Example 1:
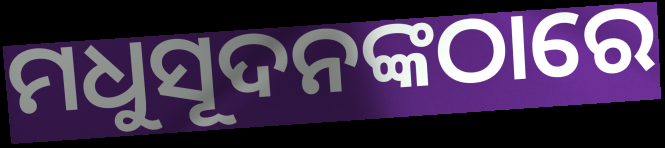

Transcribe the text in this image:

ମଧୁସୂଦନଙ୍କଠାରେ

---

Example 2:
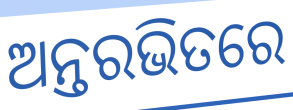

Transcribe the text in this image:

ଅନ୍ତରଭିତରେ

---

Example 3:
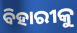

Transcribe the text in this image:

ବିହାରୀକୁ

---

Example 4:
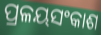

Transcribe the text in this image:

ପ୍ରଳୟସଂକାଶ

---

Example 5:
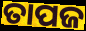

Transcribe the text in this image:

ତାପଜ